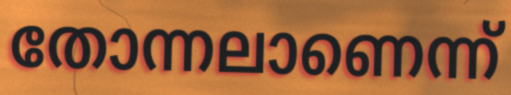
തോന്നലാണെന്ന്